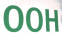
OOH